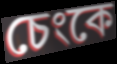
চেংকে